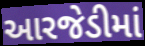
આરજેડીમાં